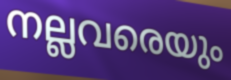
നല്ലവരെയും